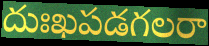
దుఃఖపడగలరా